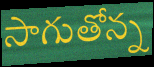
సాగుతోన్న